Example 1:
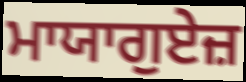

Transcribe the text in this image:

ਮਾਯਾਗੁਏਜ਼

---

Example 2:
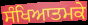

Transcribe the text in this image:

ਸੰਖਿਆਤਮਕੇ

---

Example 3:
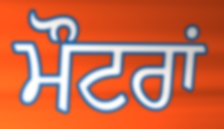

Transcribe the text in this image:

ਮੌਟਰਾਂ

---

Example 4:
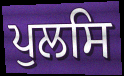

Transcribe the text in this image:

ਪੁਲਸਿ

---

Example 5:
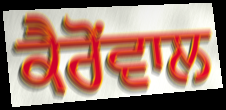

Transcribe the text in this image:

ਕੈਰੋਂਵਾਲ